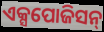
ଏକ୍ସପୋଜିସନ୍